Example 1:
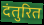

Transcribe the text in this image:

दंतुरित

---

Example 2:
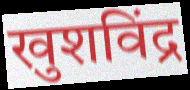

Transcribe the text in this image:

खुशविंद्र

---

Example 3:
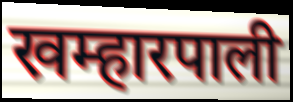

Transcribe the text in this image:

खम्हारपाली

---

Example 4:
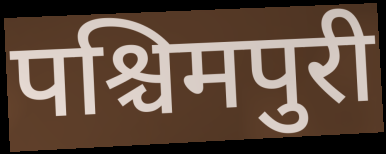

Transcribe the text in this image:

पश्चिमपुरी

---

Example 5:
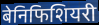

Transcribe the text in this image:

बेनिफिशियरी